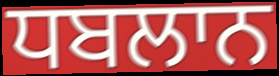
ਧਬਲਾਨ